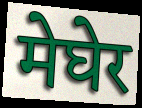
मेघेर